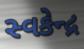
સ્વકેન્દ્ર